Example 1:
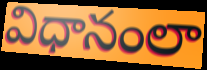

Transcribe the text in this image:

విధానంలా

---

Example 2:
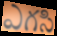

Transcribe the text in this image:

ఎగసి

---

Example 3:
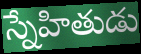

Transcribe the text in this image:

స్నేహితుడు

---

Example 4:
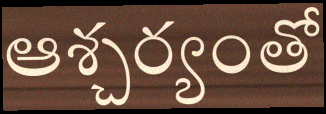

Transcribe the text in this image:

ఆశ్చర్యంతో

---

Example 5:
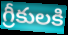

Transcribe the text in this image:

గ్రీకులకి